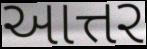
આત્તર